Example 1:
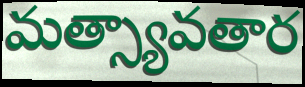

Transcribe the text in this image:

మత్స్యావతార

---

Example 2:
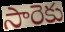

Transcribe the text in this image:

సారెకు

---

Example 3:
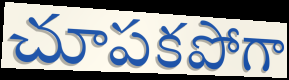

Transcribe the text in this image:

చూపకపోగా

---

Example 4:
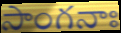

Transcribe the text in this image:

సాంగనాః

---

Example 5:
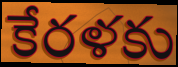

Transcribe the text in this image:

కేరళకు